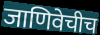
जाणिवेचीच